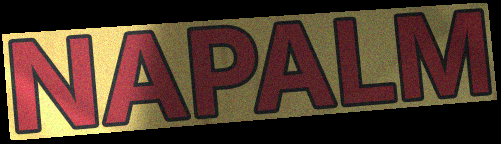
NAPALM